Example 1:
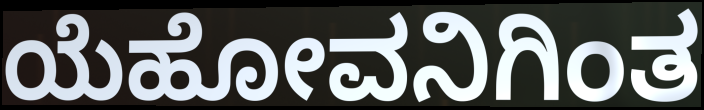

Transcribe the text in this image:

ಯೆಹೋವನಿಗಿಂತ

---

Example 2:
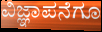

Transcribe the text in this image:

ವಿಜ್ಞಾಪನೆಗೂ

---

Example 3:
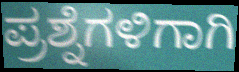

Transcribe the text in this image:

ಪ್ರಶ್ನೆಗಳಿಗಾಗಿ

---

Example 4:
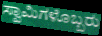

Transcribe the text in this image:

ಸ್ವಾಮಿಗಳೊಬ್ಬರು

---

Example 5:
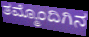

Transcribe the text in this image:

ತಮ್ಮೊಂದಿಗಿನ